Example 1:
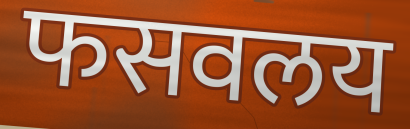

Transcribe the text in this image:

फसवलय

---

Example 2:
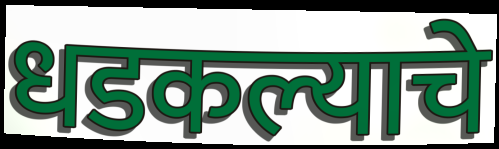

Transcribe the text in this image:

धडकल्याचे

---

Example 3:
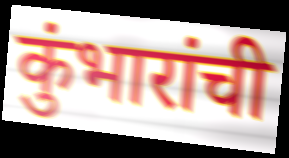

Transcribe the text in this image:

कुंभारांची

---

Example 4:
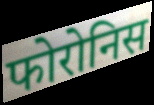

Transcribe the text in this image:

फोरोनिस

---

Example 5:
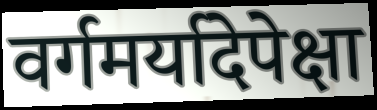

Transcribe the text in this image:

वर्गमर्यादेपेक्षा